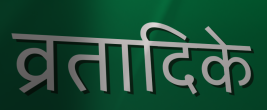
व्रतादिके